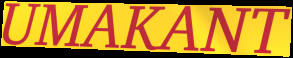
UMAKANT